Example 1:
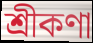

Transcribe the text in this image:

শ্রীকণা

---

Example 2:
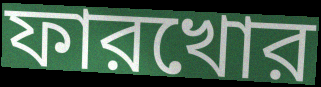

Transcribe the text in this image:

ফারখোর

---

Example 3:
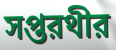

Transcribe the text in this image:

সপ্তরথীর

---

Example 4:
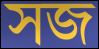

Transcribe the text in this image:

সজ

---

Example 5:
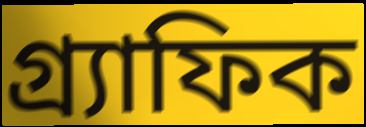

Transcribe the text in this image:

গ্র্যাফিক